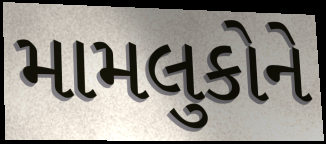
મામલુકોને